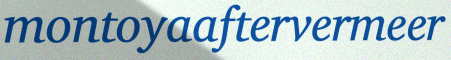
montoyaaftervermeer